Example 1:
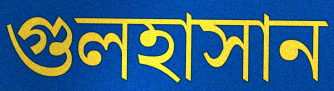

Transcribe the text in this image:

গুলহাসান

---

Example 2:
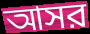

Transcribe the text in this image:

আসর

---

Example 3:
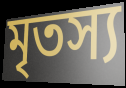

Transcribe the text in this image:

মৃতস্য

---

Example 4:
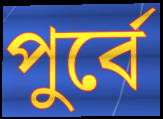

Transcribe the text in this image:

পুর্বে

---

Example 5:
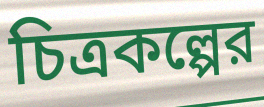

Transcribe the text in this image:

চিত্রকল্পের